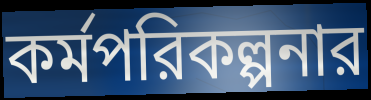
কর্মপরিকল্পনার